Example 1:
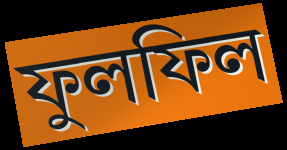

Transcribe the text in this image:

ফুলফিল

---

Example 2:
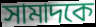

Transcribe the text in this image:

সামাদকে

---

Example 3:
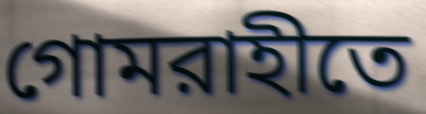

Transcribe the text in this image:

গোমরাহীতে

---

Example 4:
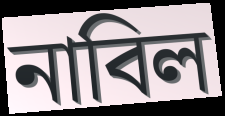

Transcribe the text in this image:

নাবিল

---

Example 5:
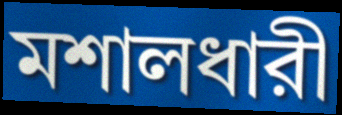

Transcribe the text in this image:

মশালধারী